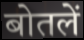
बोतलें